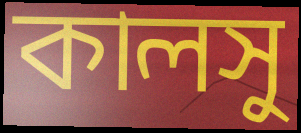
কালসু